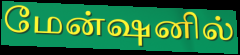
மேன்ஷனில்